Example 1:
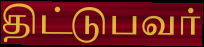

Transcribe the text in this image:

திட்டுபவர்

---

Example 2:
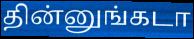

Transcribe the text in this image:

தின்னுங்கடா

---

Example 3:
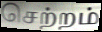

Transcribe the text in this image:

செற்றம்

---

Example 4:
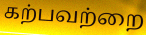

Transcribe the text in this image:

கற்பவற்றை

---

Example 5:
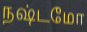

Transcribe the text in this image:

நஷ்டமோ